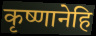
कृष्णानेहि